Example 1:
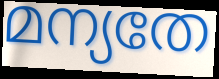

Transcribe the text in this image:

മന്യതേ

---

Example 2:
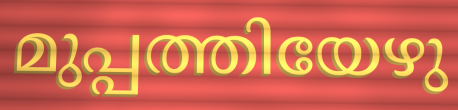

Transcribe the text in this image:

മുപ്പത്തിയേഴു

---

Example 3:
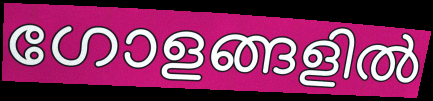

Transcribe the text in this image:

ഗോളങ്ങളിൽ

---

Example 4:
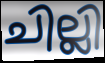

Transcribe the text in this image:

ചില്ലി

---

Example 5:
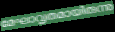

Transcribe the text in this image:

മേഘാവൃതമായിരുന്നു